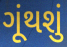
ગૂંથશું